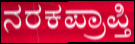
ನರಕಪ್ರಾಪ್ತಿ